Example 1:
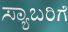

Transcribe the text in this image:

ಸ್ಯಾಬರಿಗೆ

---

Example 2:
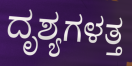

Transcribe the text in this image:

ದೃಶ್ಯಗಳತ್ತ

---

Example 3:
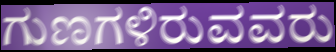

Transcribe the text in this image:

ಗುಣಗಳಿರುವವರು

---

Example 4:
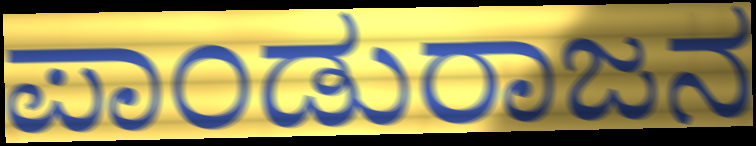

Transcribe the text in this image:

ಪಾಂಡುರಾಜನ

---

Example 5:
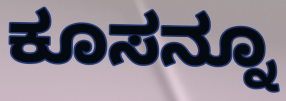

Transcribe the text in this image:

ಕೂಸನ್ನೂ